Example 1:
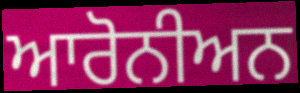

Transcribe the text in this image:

ਆਰੋਨੀਅਨ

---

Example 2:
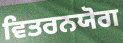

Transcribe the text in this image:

ਵਿਤਰਨਯੋਗ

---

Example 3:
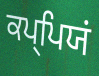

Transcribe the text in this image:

ਕਪ੍ਪਿਯਂ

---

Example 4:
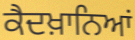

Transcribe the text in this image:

ਕੈਦਖ਼ਾਨਿਆਂ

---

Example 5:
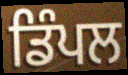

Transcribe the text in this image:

ਡਿੰਪਲ